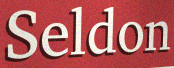
Seldon